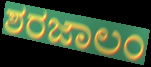
ಶರಜಾಲಂ